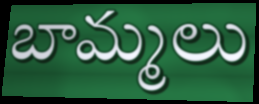
బామ్మలు